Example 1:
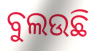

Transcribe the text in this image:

ବୁଲଉଛି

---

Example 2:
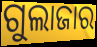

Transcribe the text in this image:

ଗୁଲାଜାର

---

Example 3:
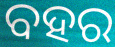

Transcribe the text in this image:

ବହର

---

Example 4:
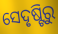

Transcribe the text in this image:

ସେଦୃଷ୍ଟିରୁ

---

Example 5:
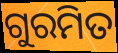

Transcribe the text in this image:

ଗୁରମିତ